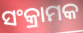
ସଂକ୍ରାମକ